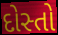
દોસ્તો